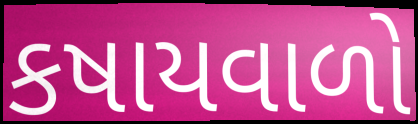
કષાયવાળો